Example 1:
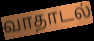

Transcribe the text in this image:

வாதாடல்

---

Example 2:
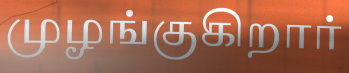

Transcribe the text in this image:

முழங்குகிறார்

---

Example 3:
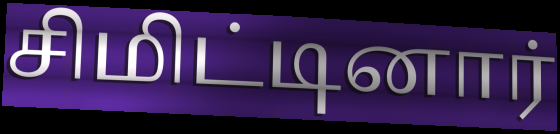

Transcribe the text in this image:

சிமிட்டினார்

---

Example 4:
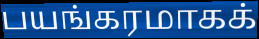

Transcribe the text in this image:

பயங்கரமாகக்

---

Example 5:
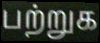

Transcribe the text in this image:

பற்றுக